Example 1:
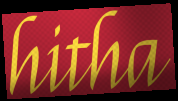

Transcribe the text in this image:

hitha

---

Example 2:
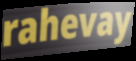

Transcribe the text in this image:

rahevay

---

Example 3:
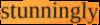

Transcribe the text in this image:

stunningly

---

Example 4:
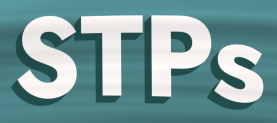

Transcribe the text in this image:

STPs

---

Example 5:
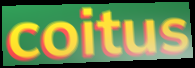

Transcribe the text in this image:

coitus